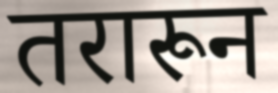
तरारून